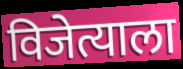
विजेत्याला